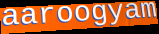
aaroogyam